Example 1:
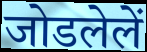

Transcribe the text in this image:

जोडलेलें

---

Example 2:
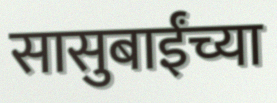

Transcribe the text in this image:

सासुबाईंच्या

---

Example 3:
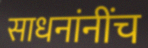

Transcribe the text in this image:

साधनांनींच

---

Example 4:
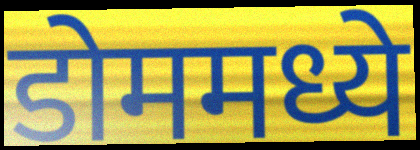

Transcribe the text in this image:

डोममध्ये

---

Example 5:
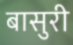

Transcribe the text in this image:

बासुरी